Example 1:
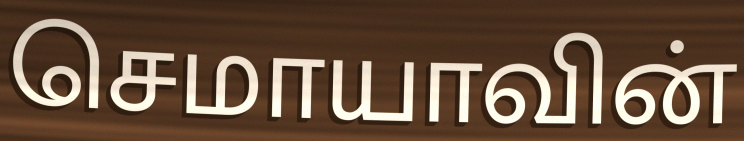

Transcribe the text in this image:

செமாயாவின்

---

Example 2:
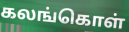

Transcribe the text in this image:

கலங்கொள்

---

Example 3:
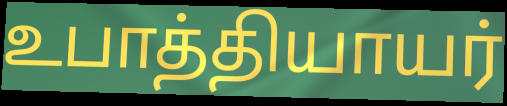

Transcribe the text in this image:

உபாத்தியாயர்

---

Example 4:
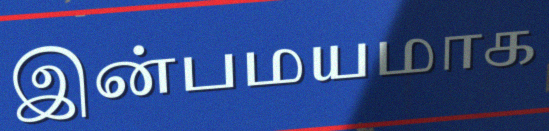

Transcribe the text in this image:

இன்பமயமாக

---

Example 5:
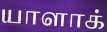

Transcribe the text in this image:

யாளாக்